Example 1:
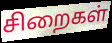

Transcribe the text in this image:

சிறைகள்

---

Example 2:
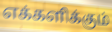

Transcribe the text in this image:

எக்களிக்கும்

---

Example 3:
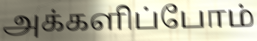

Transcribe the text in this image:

அக்களிப்போம்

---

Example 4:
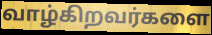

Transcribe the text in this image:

வாழ்கிறவர்களை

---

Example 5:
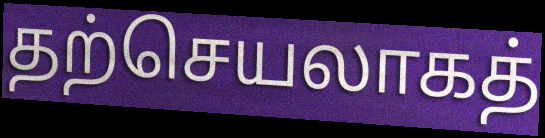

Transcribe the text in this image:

தற்செயலாகத்